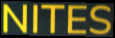
NITES